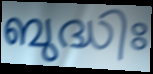
ബുദ്ധിഃ